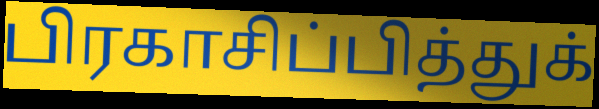
பிரகாசிப்பித்துக்